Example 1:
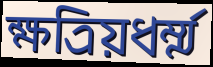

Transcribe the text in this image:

ক্ষত্রিয়ধর্ম্ম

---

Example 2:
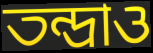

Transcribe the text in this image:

তন্দ্রাও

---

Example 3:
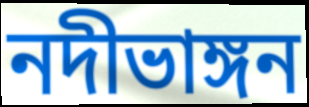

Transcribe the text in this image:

নদীভাঙ্গন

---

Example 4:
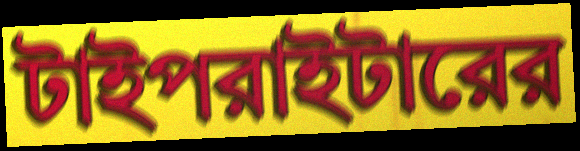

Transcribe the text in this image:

টাইপরাইটারের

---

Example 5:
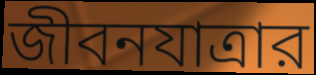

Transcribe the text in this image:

জীবনযাত্রার